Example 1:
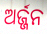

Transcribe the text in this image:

ଅର୍ଜ୍ଜନ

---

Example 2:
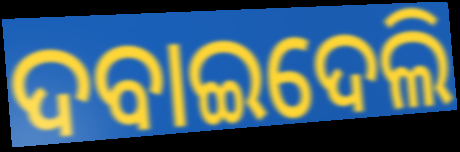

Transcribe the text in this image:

ଦବାଇଦେଲି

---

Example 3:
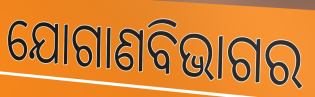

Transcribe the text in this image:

ଯୋଗାଣବିଭାଗର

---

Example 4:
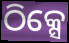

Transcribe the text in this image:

ଠିକ୍ସେ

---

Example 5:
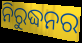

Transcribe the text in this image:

ନିରୁଦ୍ଧନର